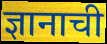
ज्ञानाची